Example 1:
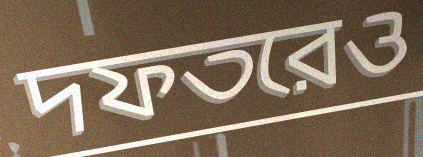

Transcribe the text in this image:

দফতরেও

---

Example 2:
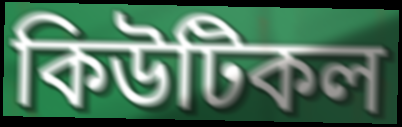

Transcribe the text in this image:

কিউটিকল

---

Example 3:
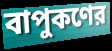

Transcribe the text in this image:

বাপুকণের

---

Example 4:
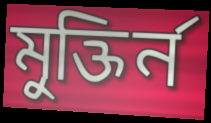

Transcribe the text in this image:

মুক্তির্ন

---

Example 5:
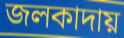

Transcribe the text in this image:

জলকাদায়